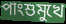
পাংশুমুখে